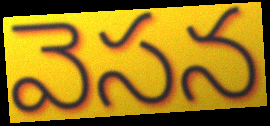
వెసన